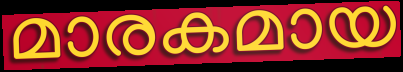
മാരകമായ